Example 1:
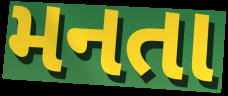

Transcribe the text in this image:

મનતા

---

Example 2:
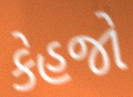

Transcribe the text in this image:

કેહજો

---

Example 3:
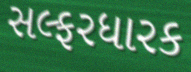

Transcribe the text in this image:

સલ્ફરધારક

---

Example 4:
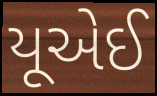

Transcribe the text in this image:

યૂએઈ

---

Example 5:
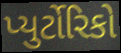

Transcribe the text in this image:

પ્યુર્ટોરિકો